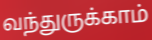
வந்துருக்காம்